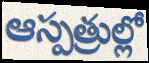
ఆస్పత్రుల్లో